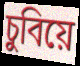
চুবিয়ে